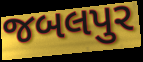
જબલપુર